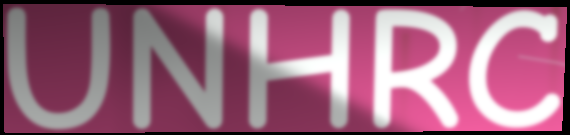
UNHRC